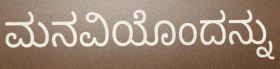
ಮನವಿಯೊಂದನ್ನು